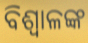
ବିଶ୍ୱାଳଙ୍କ